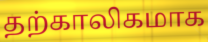
தற்காலிகமாக